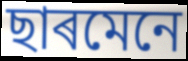
ছাৰমেনে